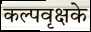
कल्पवृक्षके